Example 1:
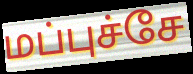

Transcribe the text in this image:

மப்புச்சே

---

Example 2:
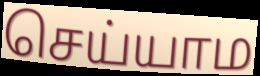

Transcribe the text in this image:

செய்யாம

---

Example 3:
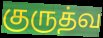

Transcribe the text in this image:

குருத்வ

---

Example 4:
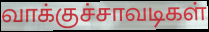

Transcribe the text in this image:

வாக்குச்சாவடிகள்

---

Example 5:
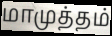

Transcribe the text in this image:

மாமுத்தம்